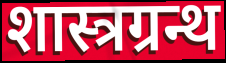
शास्त्रग्रन्थ